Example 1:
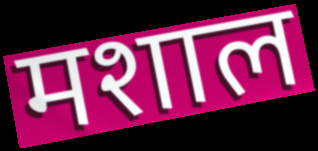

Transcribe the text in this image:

मशाल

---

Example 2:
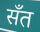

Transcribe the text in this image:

सँत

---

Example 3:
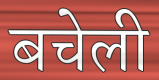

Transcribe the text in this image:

बचेली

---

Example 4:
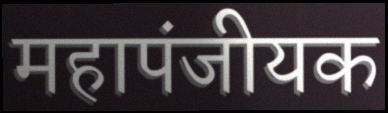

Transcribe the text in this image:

महापंजीयक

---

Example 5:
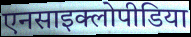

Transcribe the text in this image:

एनसाइक्लोपीडिया